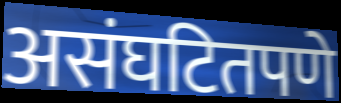
असंघटितपणे